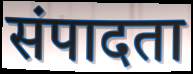
संपादता